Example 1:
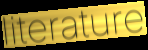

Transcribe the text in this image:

literature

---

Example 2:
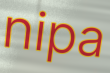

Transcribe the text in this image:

nipa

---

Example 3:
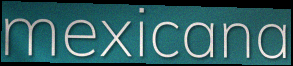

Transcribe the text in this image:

mexicana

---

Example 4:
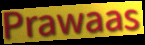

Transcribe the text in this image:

Prawaas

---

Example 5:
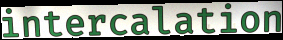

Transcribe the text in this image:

intercalation